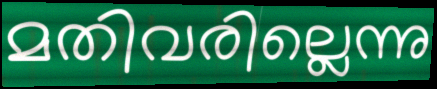
മതിവരില്ലെന്നു